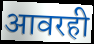
आवरही